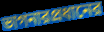
ভাগনারপ্রধানের